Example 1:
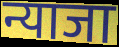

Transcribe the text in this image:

न्याजा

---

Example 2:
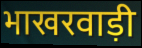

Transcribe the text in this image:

भाखरवाड़ी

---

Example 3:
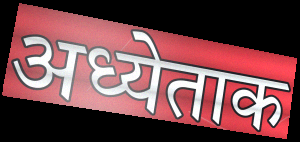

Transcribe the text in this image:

अध्येताक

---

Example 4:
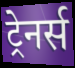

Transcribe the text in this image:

ट्रेनर्स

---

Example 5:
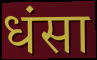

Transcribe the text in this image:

धंसा